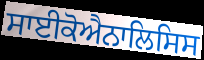
ਸਾਈਕੋਐਨਾਲਿਸਿਸ